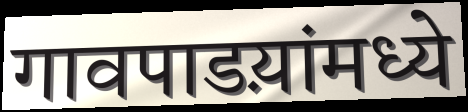
गावपाडय़ांमध्ये